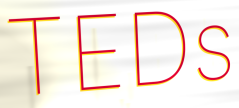
TEDs